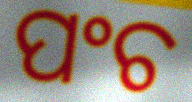
ପଂଚ